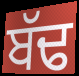
ਬੱਢ